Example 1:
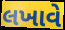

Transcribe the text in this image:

લખાવે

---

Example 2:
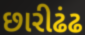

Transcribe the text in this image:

છારીઢંઢ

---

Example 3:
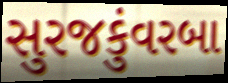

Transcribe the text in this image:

સુરજકુંવરબા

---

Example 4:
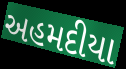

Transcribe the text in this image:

અહમદીયા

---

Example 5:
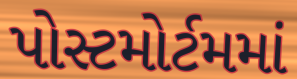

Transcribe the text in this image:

પોસ્ટમોર્ટમમાં